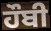
ਹੌਬੀ